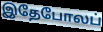
இதேபோலப்